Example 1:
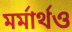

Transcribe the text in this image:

মর্মার্থও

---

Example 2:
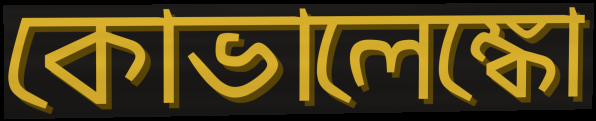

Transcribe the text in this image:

কোভালেঙ্কো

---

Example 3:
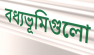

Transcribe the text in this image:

বধ্যভূমিগুলো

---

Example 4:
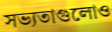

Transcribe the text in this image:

সভ্যতাগুলোও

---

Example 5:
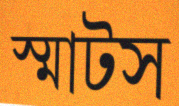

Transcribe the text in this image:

স্মাটস